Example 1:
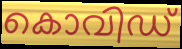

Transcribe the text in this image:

കൊവിഡ്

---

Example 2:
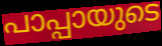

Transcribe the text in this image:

പാപ്പായുടെ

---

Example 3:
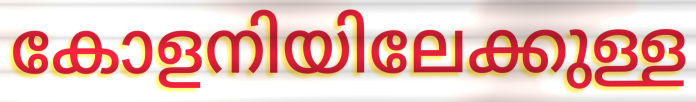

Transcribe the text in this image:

കോളനിയിലേക്കുള്ള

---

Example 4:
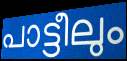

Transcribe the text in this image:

പാട്ടീലും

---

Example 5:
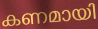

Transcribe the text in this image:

കണമായി